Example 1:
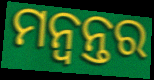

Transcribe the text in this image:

ମନ୍ୱନ୍ତର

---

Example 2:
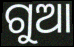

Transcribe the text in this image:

ଗୁଆ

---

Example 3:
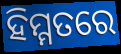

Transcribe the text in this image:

ହିମ୍ମତରେ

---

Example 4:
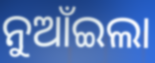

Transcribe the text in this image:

ନୁଆଁଇଲା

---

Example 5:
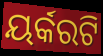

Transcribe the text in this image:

ୟର୍କରଟି